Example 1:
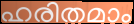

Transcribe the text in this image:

ഹരിതമാം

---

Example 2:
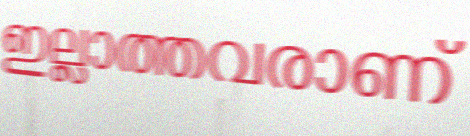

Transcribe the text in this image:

ഇല്ലാത്തവരാണ്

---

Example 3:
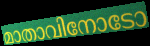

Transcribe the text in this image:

മാതാവിനോടോ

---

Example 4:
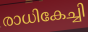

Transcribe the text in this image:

രാധികേച്ചി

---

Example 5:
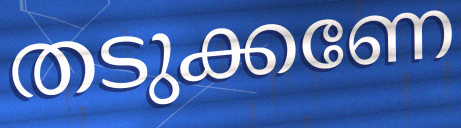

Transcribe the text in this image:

തടുക്കണേ